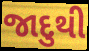
જાદુથી